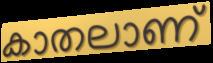
കാതലാണ്